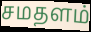
சமதளம்